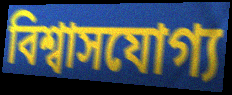
বিশ্বাসযোগ্য